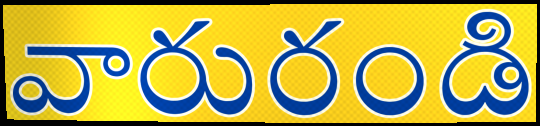
వారురండి